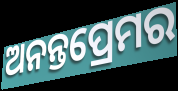
ଅନନ୍ତପ୍ରେମର